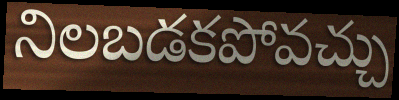
నిలబడకపోవచ్చు